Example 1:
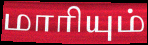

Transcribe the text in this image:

மாரியும்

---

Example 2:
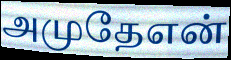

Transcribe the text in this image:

அமுதேஎன்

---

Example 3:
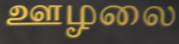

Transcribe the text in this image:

ஊழலை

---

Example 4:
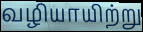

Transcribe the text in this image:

வழியாயிற்று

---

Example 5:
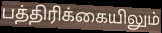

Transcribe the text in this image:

பத்திரிக்கையிலும்